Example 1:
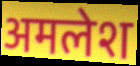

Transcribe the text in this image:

अमलेश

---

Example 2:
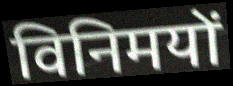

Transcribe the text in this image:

विनिमयों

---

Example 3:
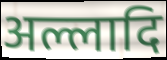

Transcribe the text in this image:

अल्लादि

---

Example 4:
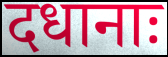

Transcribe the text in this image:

दधानाः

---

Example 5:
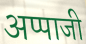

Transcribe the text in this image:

अप्पाजी